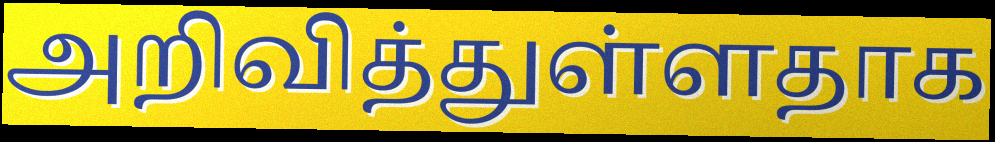
அறிவித்துள்ளதாக